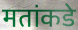
मतांकडे